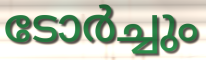
ടോർച്ചും